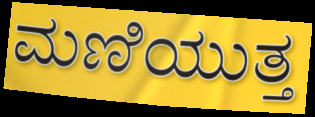
ಮಣಿಯುತ್ತ